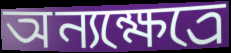
অন্যক্ষেত্রে